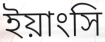
ইয়াংসি